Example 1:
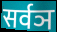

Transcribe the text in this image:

सर्वञ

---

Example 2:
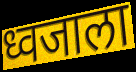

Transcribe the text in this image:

ध्वजाला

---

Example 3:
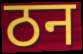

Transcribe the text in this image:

ठन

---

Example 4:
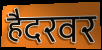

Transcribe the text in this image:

हैदरवर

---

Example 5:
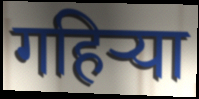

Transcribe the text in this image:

गहिर्‍या